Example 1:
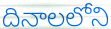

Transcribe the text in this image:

దినాలలోని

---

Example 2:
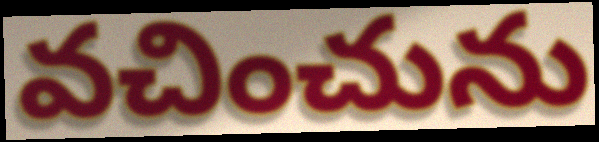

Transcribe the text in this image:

వచించును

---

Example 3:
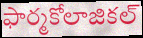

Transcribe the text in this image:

ఫార్మకోలాజికల్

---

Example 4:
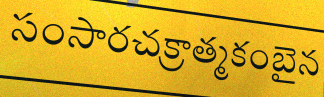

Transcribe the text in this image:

సంసారచక్రాత్మకంబైన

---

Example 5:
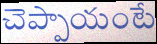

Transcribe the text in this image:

చెప్పాయంటే